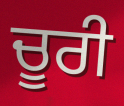
ਚੂਰੀ